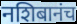
नशिबानंच